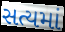
સત્યમાં